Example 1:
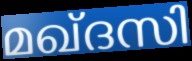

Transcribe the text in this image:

മഖ്ദസി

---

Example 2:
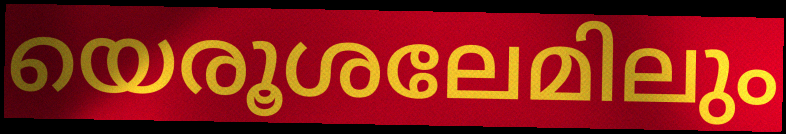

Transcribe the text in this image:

യെരൂശലേമിലും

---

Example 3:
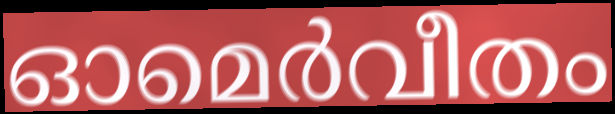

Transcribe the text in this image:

ഓമെർവീതം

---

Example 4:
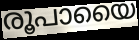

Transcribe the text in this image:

രൂപായൈ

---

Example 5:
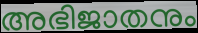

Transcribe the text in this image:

അഭിജാതനും